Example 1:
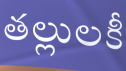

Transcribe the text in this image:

తల్లులకీ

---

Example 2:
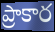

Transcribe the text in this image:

ప్రాకార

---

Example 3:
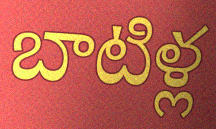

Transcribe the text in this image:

బాటిళ్ల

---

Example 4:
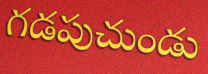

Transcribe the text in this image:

గడపుచుండు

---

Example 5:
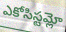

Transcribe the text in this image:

ఎకోసిస్టమ్లో